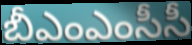
బీఎంఎంసీసీ